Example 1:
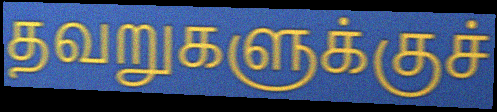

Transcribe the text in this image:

தவறுகளுக்குச்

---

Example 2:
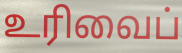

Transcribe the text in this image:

உரிவைப்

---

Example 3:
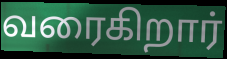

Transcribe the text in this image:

வரைகிறார்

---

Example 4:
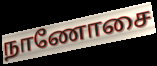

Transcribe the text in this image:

நாணோசை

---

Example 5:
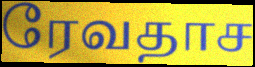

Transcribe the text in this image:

ரேவதாச